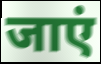
जाएं